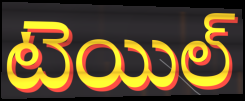
టెయిల్